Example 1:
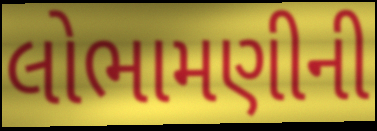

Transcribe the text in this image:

લોભામણીની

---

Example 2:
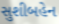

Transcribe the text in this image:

સુશીબહેન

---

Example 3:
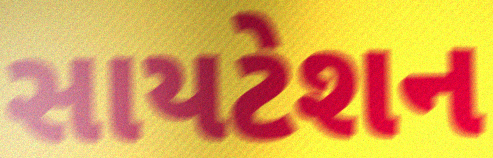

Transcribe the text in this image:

સાયટેશન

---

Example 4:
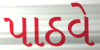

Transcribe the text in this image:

પાઠવે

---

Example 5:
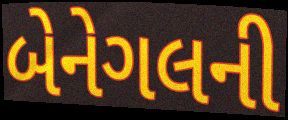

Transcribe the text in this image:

બેનેગલની